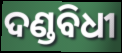
ଦଣ୍ଡବିଧୀ